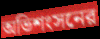
অভিশংসনের